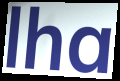
lha